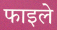
फाइले